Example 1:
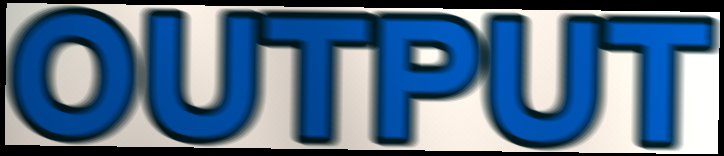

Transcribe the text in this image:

OUTPUT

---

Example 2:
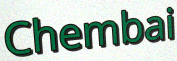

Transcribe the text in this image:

Chembai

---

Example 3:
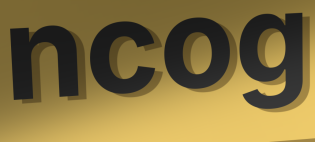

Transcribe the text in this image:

ncog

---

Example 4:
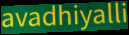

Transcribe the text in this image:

avadhiyalli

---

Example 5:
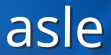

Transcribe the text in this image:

asle